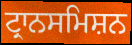
ਟ੍ਰਾਨਸਮਿਸ਼ਨ